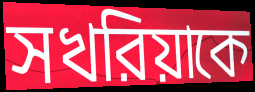
সখরিয়াকে